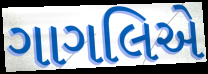
ગાગલિએ